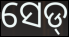
ସେଡ୍